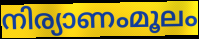
നിര്യാണംമൂലം